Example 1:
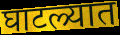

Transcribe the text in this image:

घाटल्यात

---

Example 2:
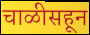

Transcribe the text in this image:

चाळीसहून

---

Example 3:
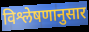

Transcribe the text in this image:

विश्लेषणानुसार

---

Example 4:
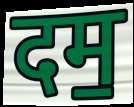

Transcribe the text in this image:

दम॒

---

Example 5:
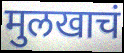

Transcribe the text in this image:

मुलखाचं